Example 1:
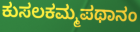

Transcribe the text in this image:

ಕುಸಲಕಮ್ಮಪಥಾನಂ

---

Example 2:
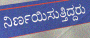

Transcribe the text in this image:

ನಿರ್ಣಯಿಸುತ್ತಿದ್ದರು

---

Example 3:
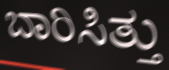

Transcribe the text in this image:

ಬಾರಿಸಿತ್ತು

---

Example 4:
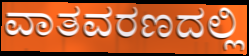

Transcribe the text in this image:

ವಾತವರಣದಲ್ಲಿ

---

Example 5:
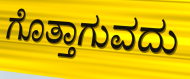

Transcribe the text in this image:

ಗೊತ್ತಾಗುವದು